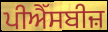
ਪੀਐੱਸਬੀਜ਼